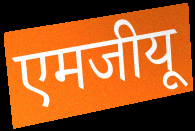
एमजीयू